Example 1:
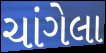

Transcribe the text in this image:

ચાંગેલા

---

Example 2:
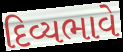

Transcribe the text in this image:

દિવ્યભાવે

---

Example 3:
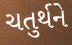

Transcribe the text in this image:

ચતુર્થને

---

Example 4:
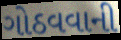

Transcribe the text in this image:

ગોઠવવાની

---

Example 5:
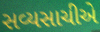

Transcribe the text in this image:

સવ્યસાચીએ